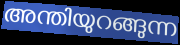
അന്തിയുറങ്ങുന്ന